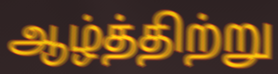
ஆழ்த்திற்று